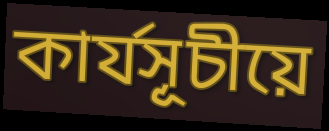
কাৰ্যসূচীয়ে